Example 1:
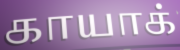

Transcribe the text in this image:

காயாக்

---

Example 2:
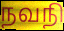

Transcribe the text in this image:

நவநி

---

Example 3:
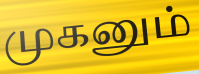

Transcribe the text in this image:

முகனும்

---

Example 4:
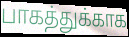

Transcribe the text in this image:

பாகத்துக்காக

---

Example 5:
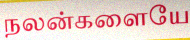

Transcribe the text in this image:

நலன்களையே